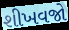
શીખવજો